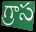
గ్రాస